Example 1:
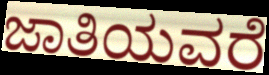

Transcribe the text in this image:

ಜಾತಿಯವರೆ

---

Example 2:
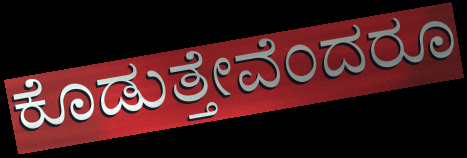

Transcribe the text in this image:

ಕೊಡುತ್ತೇವೆಂದರೂ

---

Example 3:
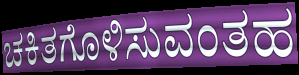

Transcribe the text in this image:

ಚಕಿತಗೊಳಿಸುವಂತಹ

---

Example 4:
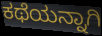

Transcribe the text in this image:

ಕಥೆಯನ್ನಾಗಿ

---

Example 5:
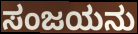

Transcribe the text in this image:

ಸಂಜಯನು